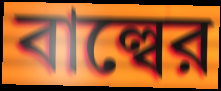
বাল্বের